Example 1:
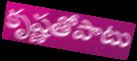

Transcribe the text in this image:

కృష్ణతోపాటు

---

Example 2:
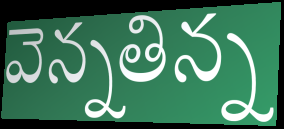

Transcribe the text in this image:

వెన్నతిన్న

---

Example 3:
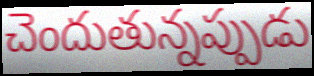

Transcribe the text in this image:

చెందుతున్నప్పుడు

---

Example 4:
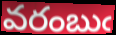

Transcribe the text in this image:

వరంబుఁ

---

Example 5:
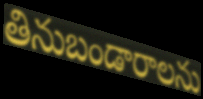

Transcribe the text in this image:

తినుబండారాలను